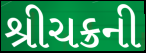
શ્રીચક્રની